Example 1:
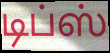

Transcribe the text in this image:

டிப்ஸ்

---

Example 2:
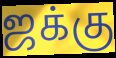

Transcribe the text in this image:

ஜக்கு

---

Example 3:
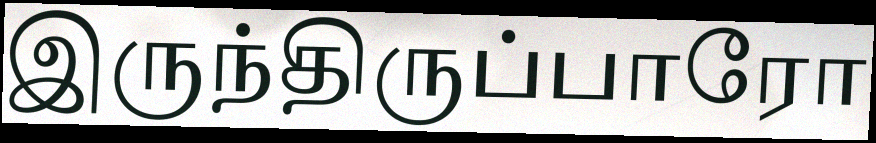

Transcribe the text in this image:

இருந்திருப்பாரோ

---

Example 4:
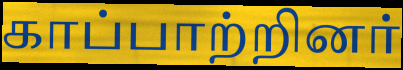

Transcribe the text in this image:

காப்பாற்றினர்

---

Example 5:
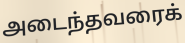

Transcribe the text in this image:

அடைந்தவரைக்